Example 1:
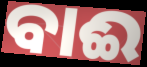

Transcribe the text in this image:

ବାଈ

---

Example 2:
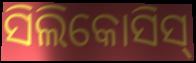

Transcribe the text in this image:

ସିଲିକୋସିସ୍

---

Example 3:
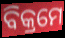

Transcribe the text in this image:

ବିକ୍ରମେ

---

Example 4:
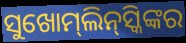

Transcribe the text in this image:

ସୁଖୋମ୍‍ଲିନ୍‍ସ୍କିଙ୍କର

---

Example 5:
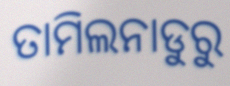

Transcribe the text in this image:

ତାମିଲନାଡୁରୁ